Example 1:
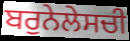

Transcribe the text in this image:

ਬਰੁਨੇਲੇਸਚੀ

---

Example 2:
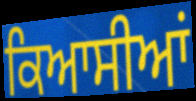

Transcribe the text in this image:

ਕਿਆਸੀਆਂ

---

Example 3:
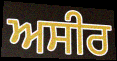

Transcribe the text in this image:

ਅਸੀਰ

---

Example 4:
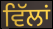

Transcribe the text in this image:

ਵਿੱਲਾਂ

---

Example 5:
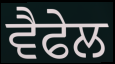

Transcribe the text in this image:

ਵੈਫੇਲ